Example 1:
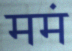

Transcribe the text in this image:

ममं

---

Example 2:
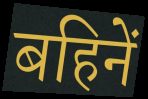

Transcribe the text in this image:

बहिनें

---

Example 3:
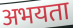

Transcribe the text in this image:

अभयता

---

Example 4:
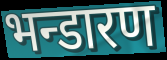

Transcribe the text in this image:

भन्डारण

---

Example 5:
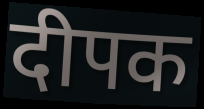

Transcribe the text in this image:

दीपक